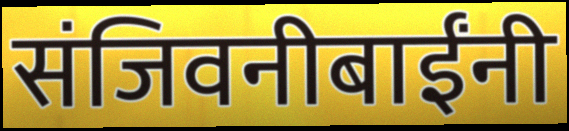
संजिवनीबाईंनी